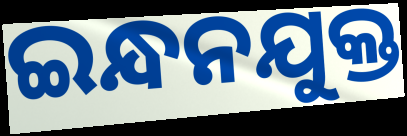
ଇନ୍ଧନଯୁକ୍ତ